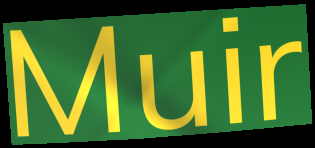
Muir